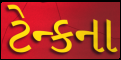
ટેન્કના